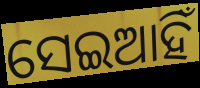
ସେଇଆହିଁ